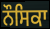
ਨੌਸਿਕਾ